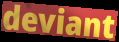
deviant